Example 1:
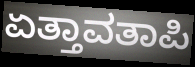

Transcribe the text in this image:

ಏತ್ತಾವತಾಪಿ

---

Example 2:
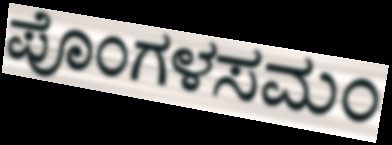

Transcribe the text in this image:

ಪೊಂಗಳಸಮಂ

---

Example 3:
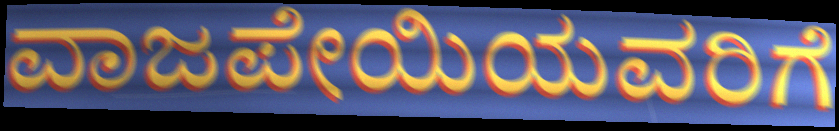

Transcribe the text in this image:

ವಾಜಪೇಯಿಯವರಿಗೆ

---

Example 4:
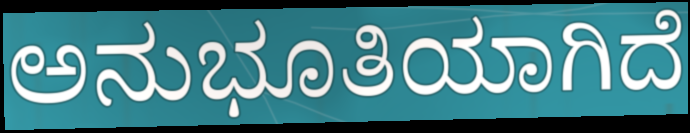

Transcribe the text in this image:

ಅನುಭೂತಿಯಾಗಿದೆ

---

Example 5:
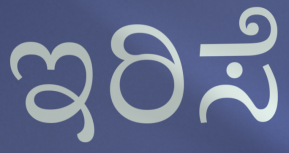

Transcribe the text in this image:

ಇರಿಸೆ